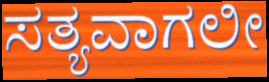
ಸತ್ಯವಾಗಲೀ